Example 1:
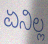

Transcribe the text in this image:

ಏನಿಲ್ಲ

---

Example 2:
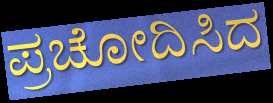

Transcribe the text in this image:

ಪ್ರಚೋದಿಸಿದ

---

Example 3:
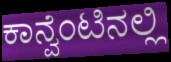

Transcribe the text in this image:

ಕಾನ್ವೆಂಟಿನಲ್ಲಿ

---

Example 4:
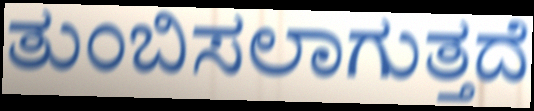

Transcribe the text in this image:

ತುಂಬಿಸಲಾಗುತ್ತದೆ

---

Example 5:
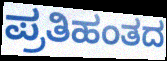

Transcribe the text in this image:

ಪ್ರತಿಹಂತದ